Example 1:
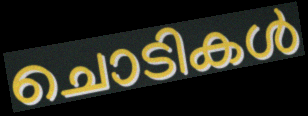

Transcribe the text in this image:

ചൊടികൾ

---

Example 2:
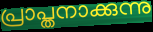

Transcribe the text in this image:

പ്രാപ്തനാക്കുന്നു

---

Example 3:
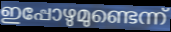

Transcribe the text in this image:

ഇപ്പോഴുമുണ്ടെന്ന്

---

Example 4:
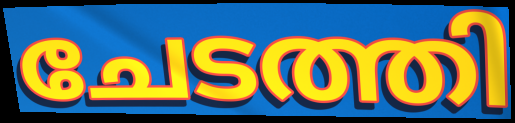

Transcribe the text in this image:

ചേടത്തി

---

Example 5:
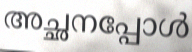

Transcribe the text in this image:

അച്ഛനപ്പോൾ